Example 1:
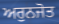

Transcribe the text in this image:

ਅਰੁਨਜੋਤ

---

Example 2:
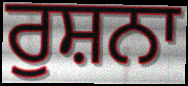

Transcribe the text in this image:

ਰੁਸ਼ਨਾ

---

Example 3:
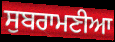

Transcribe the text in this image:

ਸੁਬਰਾਮਣੀਆ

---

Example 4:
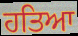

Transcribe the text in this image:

ਹਤਿਆ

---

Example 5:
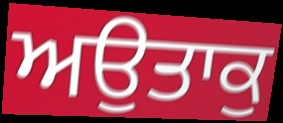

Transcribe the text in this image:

ਅਉਤਾਕੁ